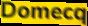
Domecq